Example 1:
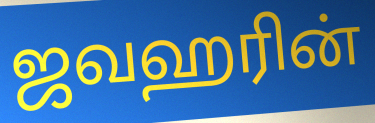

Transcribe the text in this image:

ஜவஹரின்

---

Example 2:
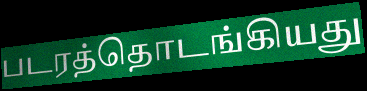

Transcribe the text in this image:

படரத்தொடங்கியது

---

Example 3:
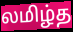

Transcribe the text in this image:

லமிழ்த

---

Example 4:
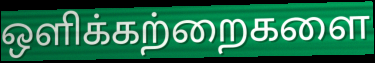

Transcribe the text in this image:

ஒளிக்கற்றைகளை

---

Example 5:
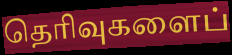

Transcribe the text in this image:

தெரிவுகளைப்